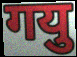
गयु